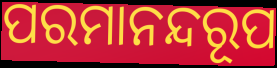
ପରମାନନ୍ଦରୂପ